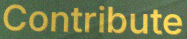
Contribute